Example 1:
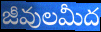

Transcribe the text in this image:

జీవులమీద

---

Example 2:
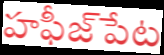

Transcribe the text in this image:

హఫీజ్‌పేట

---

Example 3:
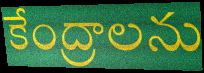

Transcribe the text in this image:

కేంద్రాలను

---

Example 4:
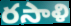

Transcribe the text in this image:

రసాళి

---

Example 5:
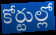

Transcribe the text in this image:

కోర్టుల్లో